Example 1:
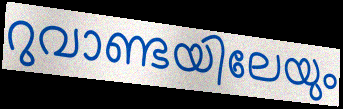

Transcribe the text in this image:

റുവാണ്ടയിലേയും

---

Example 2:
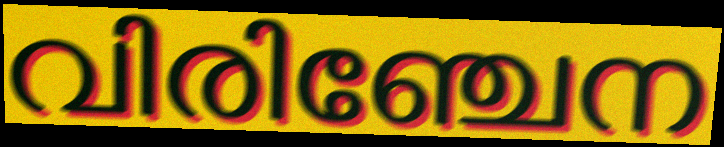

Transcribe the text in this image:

വിരിഞ്ചേന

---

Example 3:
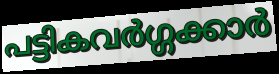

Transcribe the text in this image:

പട്ടികവർഗ്ഗക്കാർ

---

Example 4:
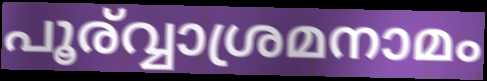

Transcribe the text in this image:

പൂര്വ്വാശ്രമനാമം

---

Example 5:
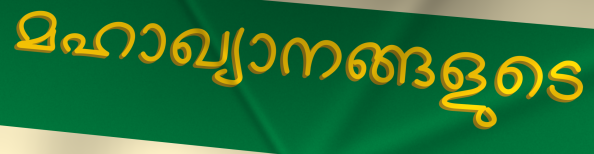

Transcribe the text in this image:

മഹാഖ്യാനങ്ങളുടെ